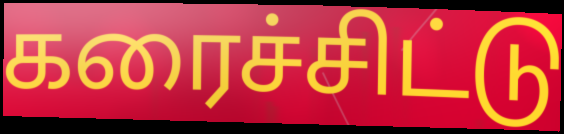
கரைச்சிட்டு